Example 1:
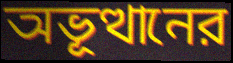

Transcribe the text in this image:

অভূত্থানের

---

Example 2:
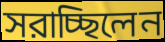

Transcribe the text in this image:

সরাচ্ছিলেন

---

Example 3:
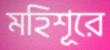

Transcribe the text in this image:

মহিশূরে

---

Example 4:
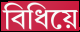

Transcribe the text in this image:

বিধিয়ে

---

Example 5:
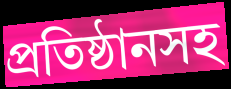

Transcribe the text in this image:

প্রতিষ্ঠানসহ